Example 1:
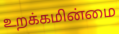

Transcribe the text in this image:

உறக்கமின்மை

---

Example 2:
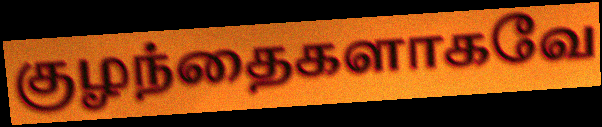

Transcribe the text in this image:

குழந்தைகளாகவே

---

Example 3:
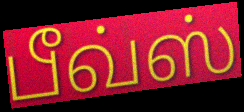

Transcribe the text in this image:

பீவ்ஸ்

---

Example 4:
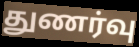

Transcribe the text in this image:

துணர்வு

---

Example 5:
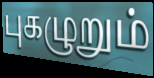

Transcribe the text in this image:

புகழுறும்